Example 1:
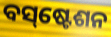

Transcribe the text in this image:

ବସ୍‌ଷ୍ଟେଶନ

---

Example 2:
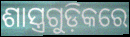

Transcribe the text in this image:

ଶାସ୍ତ୍ରଗୁଡ଼ିକରେ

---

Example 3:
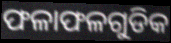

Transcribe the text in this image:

ଫଳାଫଳଗୁଡିକ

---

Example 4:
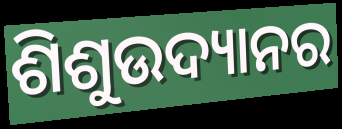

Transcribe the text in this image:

ଶିଶୁଉଦ୍ୟାନର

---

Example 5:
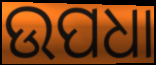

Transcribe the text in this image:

ଉପଧା